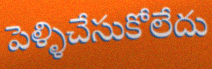
పెళ్ళిచేసుకోలేదు